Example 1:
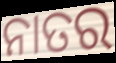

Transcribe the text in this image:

ନାତର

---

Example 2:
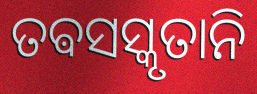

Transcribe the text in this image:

ତଵସସ୍କୃତାନି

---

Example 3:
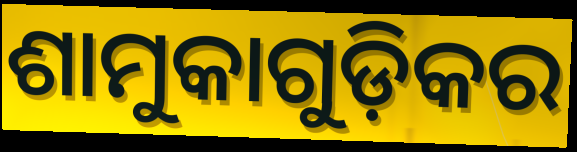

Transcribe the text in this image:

ଶାମୁକାଗୁଡ଼ିକର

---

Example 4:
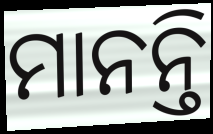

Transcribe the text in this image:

ମାନନ୍ତି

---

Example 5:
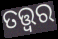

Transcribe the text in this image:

ତତ୍ତ୍ଵର